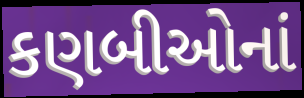
કણબીઓનાં